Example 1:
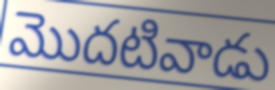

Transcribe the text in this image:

మొదటివాడు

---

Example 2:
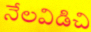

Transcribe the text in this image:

నేలవిడిచి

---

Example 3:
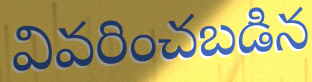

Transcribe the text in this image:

వివరించబడిన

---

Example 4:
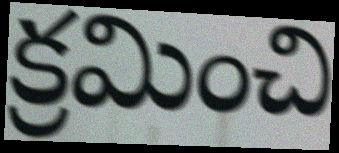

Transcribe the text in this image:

క్రమించి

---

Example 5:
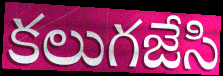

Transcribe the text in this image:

కలుగజేసి